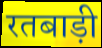
रतबाड़ी